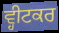
ਵ੍ਹੀਟਕਰ